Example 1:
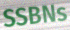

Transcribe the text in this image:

SSBNs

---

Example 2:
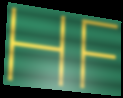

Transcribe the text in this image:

HF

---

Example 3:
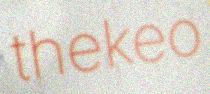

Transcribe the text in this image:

thekeo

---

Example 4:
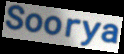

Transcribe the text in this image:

Soorya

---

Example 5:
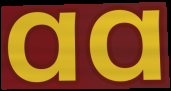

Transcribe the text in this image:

aa